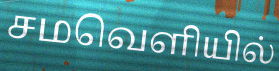
சமவெளியில்